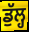
ਡੁੱਲ੍ਹ